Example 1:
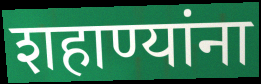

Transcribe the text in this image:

शहाण्यांना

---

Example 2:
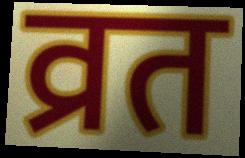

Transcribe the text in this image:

व्रत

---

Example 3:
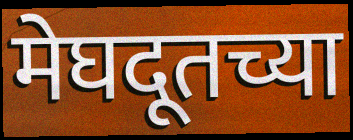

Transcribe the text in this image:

मेघदूतच्या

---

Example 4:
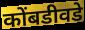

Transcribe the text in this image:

कोंबडीवडे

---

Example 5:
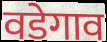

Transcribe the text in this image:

वडेगाव